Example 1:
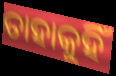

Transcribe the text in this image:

ତାହାକୁହିଁ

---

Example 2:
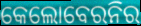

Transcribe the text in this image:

କେଲୋବେରନିର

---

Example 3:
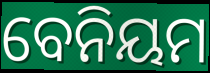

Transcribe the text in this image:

ବେନିୟମ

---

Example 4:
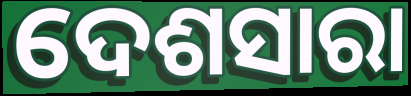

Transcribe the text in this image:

ଦେଶସାରା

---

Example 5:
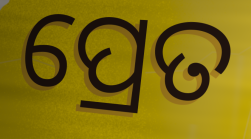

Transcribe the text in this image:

ପ୍ରେତ